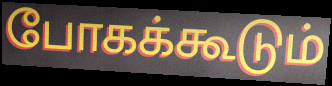
போகக்கூடும்